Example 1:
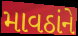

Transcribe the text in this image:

માવઠાંને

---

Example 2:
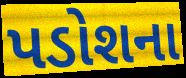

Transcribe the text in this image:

પડોશના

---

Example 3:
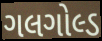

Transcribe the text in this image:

ગલગોલ્ડ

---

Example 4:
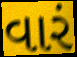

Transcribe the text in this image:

વારં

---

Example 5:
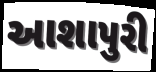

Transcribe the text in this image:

આશાપુરી